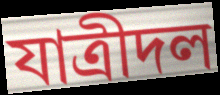
যাত্রীদল